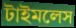
টাইমলেস